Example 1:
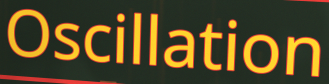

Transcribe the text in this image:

Oscillation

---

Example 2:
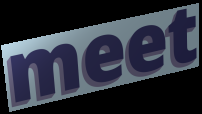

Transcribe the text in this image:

meet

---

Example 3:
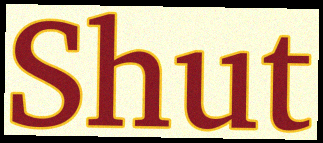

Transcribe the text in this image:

Shut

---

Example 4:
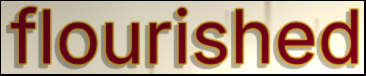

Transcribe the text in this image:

flourished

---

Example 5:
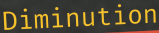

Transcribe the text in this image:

Diminution